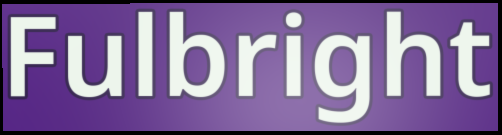
Fulbright